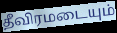
தீவிரமடையும்